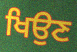
ਖਿਉਣ